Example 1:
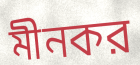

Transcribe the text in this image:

মীনকর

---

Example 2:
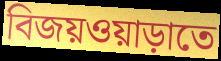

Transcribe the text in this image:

বিজয়ওয়াড়াতে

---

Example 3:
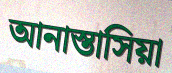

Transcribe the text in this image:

আনাস্তাসিয়া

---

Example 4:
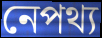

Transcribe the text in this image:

নেপথ্য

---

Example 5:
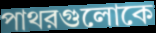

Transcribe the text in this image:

পাথরগুলোকে